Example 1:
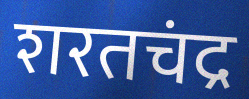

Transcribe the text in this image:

शरतचंद्र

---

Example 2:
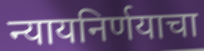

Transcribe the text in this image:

न्यायनिर्णयाचा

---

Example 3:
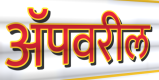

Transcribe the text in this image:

ॲपवरील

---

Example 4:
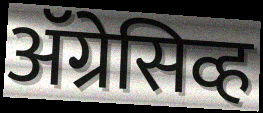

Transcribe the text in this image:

ॲग्रेसिव्ह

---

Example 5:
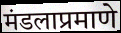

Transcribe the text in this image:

मंडलाप्रमाणे